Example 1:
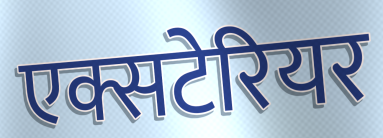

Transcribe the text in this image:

एक्सटेरियर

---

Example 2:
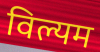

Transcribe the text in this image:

विल्यम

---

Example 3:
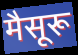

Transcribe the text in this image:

मैसूरू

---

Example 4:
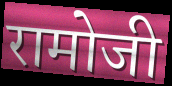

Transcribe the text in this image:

रामोजी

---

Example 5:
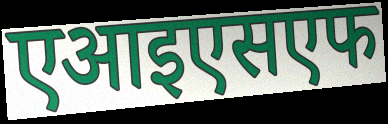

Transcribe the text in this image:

एआइएसएफ